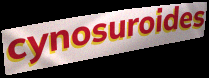
cynosuroides